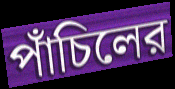
পাঁচিলের